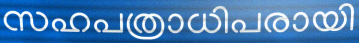
സഹപത്രാധിപരായി